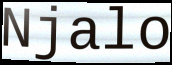
Njalo